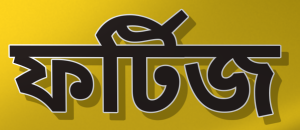
ফর্টিজ